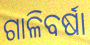
ଗାଳିବର୍ଷା